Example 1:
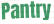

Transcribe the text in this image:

Pantry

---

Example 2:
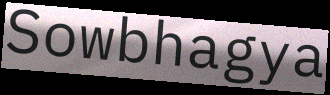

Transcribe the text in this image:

Sowbhagya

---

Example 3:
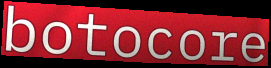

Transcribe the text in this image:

botocore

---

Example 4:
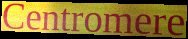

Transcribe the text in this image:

Centromere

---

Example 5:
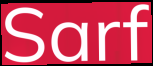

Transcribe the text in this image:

Sarf